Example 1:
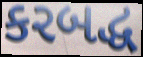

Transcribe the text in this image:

કરબદ્ધ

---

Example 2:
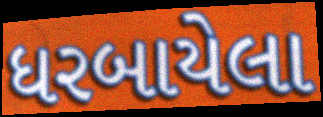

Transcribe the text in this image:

ધરબાયેલા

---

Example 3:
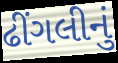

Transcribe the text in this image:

ઢીંગલીનું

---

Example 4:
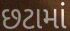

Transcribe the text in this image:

છટામાં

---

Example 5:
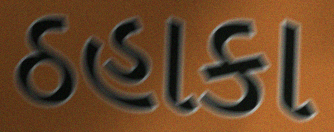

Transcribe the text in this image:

ઠહાકા